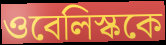
ওবেলিস্ককে